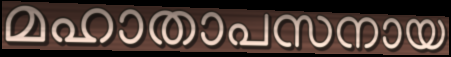
മഹാതാപസനായ